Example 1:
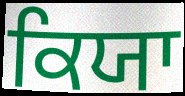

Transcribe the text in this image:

ਕਿਯਾ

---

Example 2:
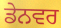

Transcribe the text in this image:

ਡੇਨਵਰ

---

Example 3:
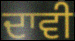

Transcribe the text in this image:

ਦਾਵੀ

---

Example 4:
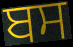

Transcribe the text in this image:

ਬਸ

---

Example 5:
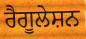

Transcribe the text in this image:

ਰੈਗੂਲੇਸ਼ਨ